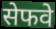
सेफवे